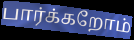
பார்க்கறோம்